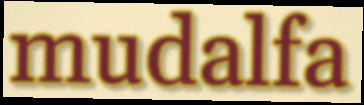
mudalfa